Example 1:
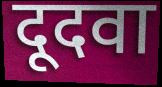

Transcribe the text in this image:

दूदवा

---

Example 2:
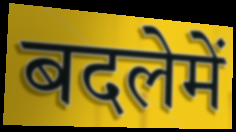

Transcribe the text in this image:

बदलेमें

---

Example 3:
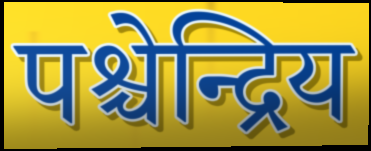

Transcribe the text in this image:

पश्चेन्द्रिय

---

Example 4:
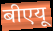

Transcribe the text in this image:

बीएयू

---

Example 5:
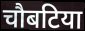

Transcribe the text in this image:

चौबटिया